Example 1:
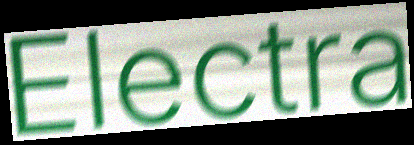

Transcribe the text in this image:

Electra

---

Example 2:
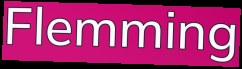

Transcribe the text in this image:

Flemming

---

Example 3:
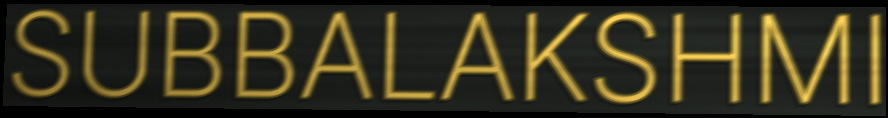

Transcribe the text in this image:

SUBBALAKSHMI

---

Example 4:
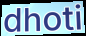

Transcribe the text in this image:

dhoti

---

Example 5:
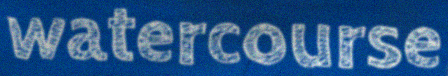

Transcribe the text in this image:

watercourse